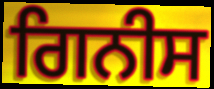
ਗਿਨੀਸ